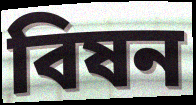
বিষন